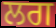
ਲਗ